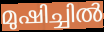
മുഷിച്ചിൽ